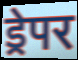
ड्रेपर